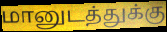
மானுடத்துக்கு